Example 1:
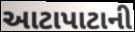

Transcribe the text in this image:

આટાપાટાની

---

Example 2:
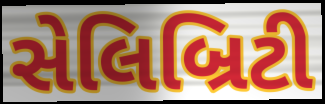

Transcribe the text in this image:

સેલિબ્રિટી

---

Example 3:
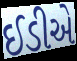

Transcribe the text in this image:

ઈડીએ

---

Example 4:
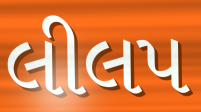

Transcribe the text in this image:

લીલપ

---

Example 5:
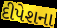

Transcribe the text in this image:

દીપેશના